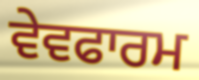
ਵੇਵਫਾਰਮ